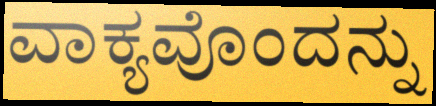
ವಾಕ್ಯವೊಂದನ್ನು